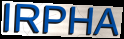
IRPHA